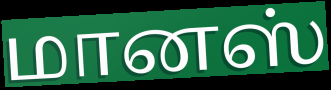
மானஸ்